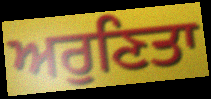
ਅਰੁਣਿਤਾ